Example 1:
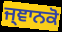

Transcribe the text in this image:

ਜ੍ਞਾਨਕੋ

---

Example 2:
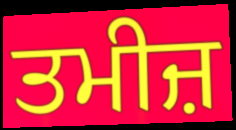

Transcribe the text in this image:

ਤਮੀਜ਼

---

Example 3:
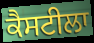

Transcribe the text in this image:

ਕੈਸਟੀਲਾ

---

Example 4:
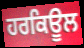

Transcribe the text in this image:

ਹਰਕਿਊਲ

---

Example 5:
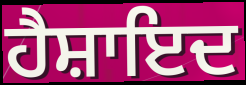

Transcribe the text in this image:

ਹੈਸ਼ਾਇਦ